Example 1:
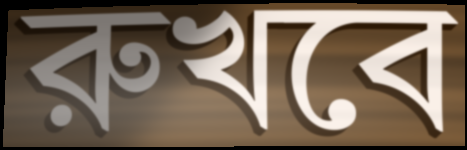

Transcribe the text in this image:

রুখবে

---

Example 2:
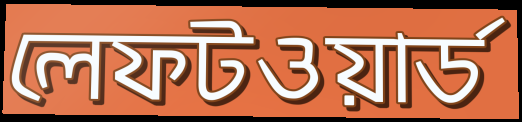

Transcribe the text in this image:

লেফটওয়ার্ড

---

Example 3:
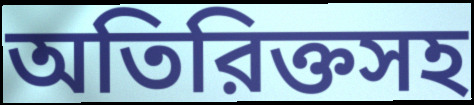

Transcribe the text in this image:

অতিরিক্তসহ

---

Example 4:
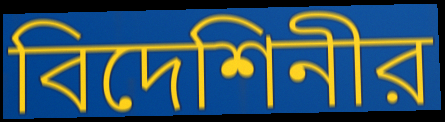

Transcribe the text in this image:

বিদেশিনীর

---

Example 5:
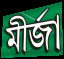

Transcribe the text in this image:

মীর্জা